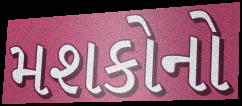
મશકોનો